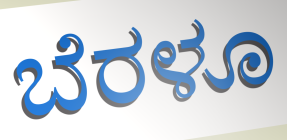
ಬೆರಳೂ